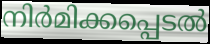
നിർമിക്കപ്പെടൽ